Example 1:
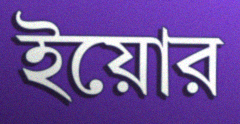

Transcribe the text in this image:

ইয়োর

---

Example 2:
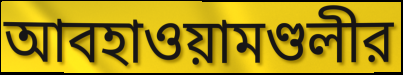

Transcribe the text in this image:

আবহাওয়ামণ্ডলীর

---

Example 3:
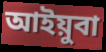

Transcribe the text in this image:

আইয়ুবা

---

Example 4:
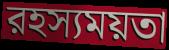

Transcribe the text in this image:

রহস্যময়তা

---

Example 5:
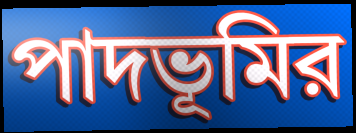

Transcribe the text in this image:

পাদভূমির